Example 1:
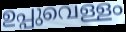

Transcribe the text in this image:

ഉപ്പുവെള്ളം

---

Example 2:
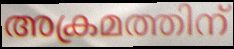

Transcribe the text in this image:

അക്രമത്തിന്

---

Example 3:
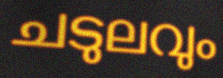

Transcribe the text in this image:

ചടുലവും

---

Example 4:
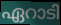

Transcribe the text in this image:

ഏറാടി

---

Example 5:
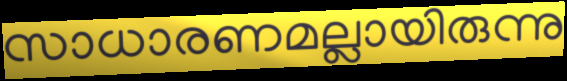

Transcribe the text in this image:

സാധാരണമല്ലായിരുന്നു